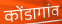
कोंडागांव